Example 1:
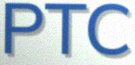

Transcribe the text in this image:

PTC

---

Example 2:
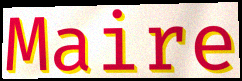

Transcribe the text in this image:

Maire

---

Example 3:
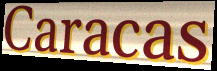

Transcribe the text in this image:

Caracas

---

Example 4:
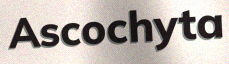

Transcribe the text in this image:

Ascochyta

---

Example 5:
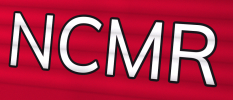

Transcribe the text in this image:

NCMR